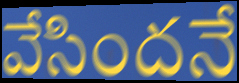
వేసిందనే